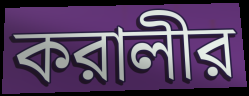
করালীর